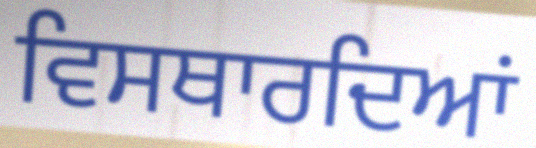
ਵਿਸਥਾਰਦਿਆਂ